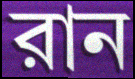
রান